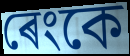
ৰেংকে